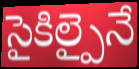
సైకిల్పైనే